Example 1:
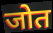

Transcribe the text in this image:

जोत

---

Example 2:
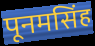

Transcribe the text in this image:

पूनमसिंह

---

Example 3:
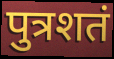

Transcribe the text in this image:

पुत्रशतं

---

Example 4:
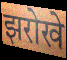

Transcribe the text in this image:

झरोखे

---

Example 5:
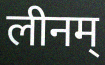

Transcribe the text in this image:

लीनम्